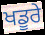
ਖਡੂਰੇ